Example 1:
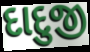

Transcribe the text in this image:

દાદુજી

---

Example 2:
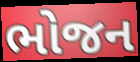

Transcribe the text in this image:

ભોજન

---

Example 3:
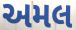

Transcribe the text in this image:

અમલ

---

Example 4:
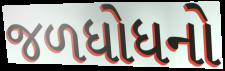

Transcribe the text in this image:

જળધોધનો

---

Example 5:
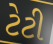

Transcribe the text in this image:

ટેટી